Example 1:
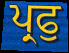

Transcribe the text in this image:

ਪ੍ਰਫੁ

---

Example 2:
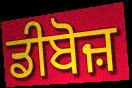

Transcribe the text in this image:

ਡੀਬੋਜ਼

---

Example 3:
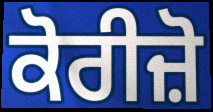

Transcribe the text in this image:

ਕੋਰੀਜ਼ੋ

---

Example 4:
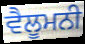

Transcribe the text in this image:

ਵੈਲੂਮਨੀ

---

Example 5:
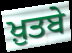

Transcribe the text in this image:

ਖ਼ੁਤਬੇ